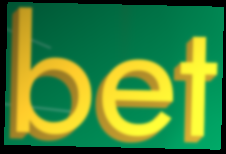
bet